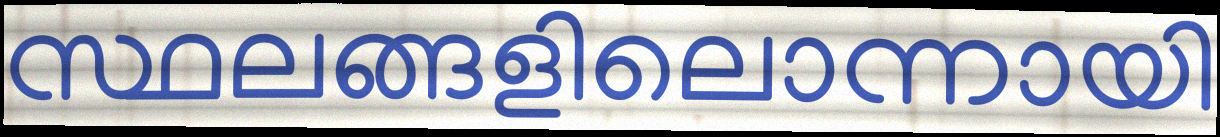
സ്ഥലങ്ങളിലൊന്നായി